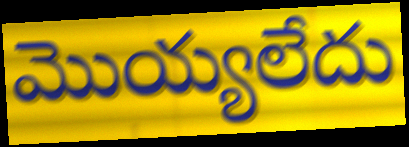
మొయ్యలేదు